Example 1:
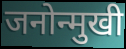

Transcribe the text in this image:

जनोन्मुखी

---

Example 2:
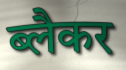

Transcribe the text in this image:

ब्लैकर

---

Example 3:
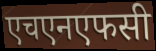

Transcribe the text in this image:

एचएनएफसी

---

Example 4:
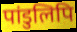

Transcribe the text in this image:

पांडुलिपि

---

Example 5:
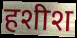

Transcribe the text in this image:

हशीश